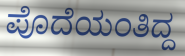
ಪೊದೆಯಂತಿದ್ದ